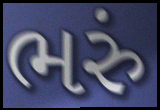
ભરું